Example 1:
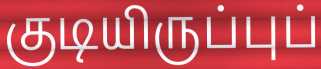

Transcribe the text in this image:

குடியிருப்புப்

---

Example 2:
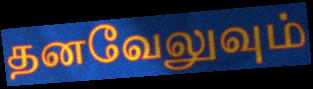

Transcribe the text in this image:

தனவேலுவும்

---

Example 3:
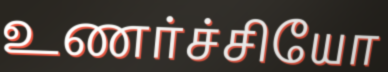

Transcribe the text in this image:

உணர்ச்சியோ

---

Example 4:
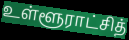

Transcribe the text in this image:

உள்ளூராட்சித்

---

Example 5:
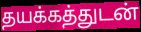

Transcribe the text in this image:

தயக்கத்துடன்